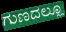
ಗುಣದಲ್ಲೂ